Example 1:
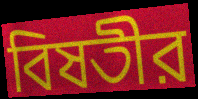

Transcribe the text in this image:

বিষতীর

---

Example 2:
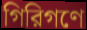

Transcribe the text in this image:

গিরিগণে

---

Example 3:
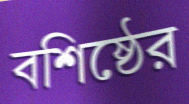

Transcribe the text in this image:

বশিষ্ঠের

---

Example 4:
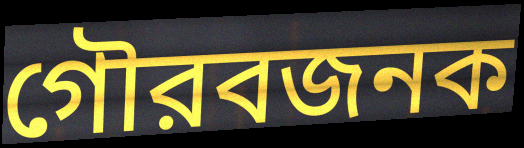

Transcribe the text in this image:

গৌরবজনক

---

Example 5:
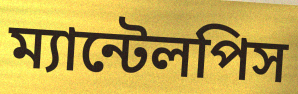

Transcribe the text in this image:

ম্যান্টেলপিস